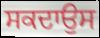
ਸਕਦਾਉਸ